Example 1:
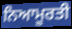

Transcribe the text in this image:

ਨਿਆਮੂਰਤੀ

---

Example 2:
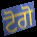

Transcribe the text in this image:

ਟੋਗੋ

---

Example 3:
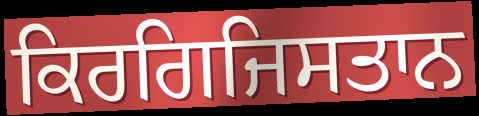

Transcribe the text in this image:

ਕਿਰਗਿਜਿਸਤਾਨ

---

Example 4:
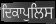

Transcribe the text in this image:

ਦਿਕਾਪੁਲਿਸ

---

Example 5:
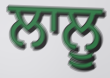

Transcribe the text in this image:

ਲਾਲੂ